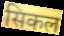
सिकल